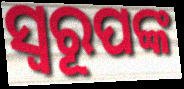
ସ୍ୱରୂପଙ୍କ